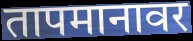
तापमानावर